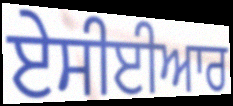
ਏਸੀਈਆਰ